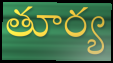
తూర్య